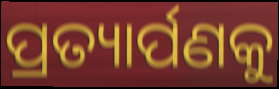
ପ୍ରତ୍ୟାର୍ପଣକୁ